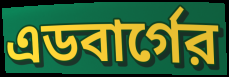
এডবার্গের